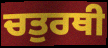
ਚਤੁਰਥੀ